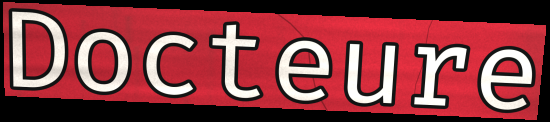
Docteure